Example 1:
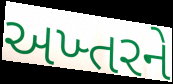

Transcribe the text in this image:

અખ્તરને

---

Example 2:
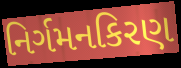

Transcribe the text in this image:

નિર્ગમનકિરણ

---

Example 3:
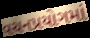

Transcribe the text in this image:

વચનપ્રયોગમાં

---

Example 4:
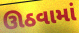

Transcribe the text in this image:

ઊઠવામાં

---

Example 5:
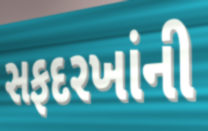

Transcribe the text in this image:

સફદરખાંની